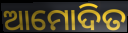
ଆମୋଦିତ